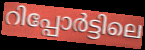
റിപ്പോർട്ടിലെ